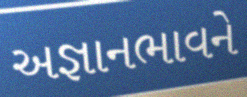
અજ્ઞાનભાવને